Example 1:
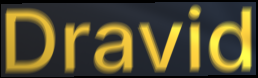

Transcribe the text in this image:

Dravid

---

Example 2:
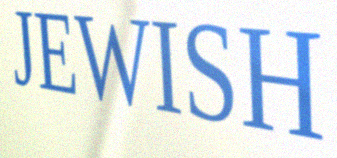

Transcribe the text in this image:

JEWISH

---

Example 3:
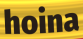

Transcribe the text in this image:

hoina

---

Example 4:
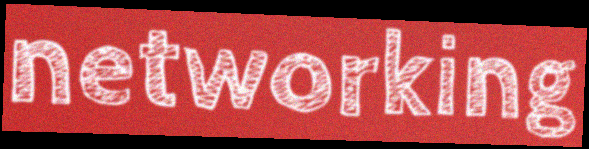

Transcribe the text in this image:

networking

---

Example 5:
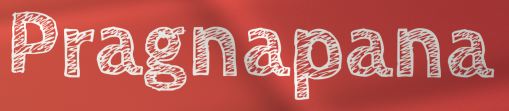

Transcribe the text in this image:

Pragnapana